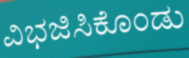
ವಿಭಜಿಸಿಕೊಂಡು